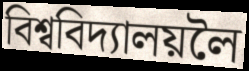
বিশ্ববিদ্যালয়লৈ